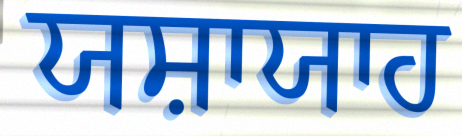
ਯਸ਼ਾਯਾਹ